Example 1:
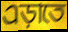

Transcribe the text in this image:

এড়াতে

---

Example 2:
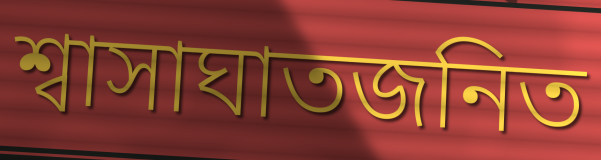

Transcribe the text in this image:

শ্বাসাঘাতজনিত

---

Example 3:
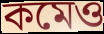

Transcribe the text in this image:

কমেও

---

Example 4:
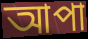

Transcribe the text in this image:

আপা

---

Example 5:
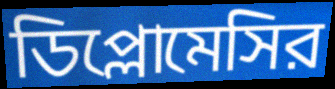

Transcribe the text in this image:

ডিপ্লোমেসির